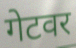
गेटवर